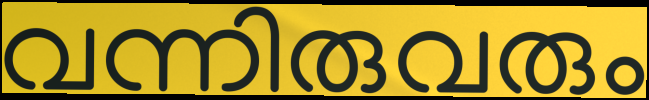
വന്നിരുവരും